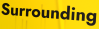
Surrounding